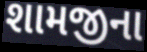
શામજીના